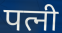
पत्‍नी